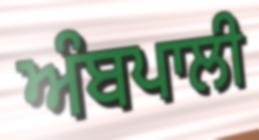
ਅੰਬਪਾਲੀ